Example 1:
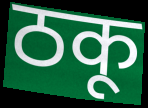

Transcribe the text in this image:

ठकू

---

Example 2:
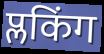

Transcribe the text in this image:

प्लकिंग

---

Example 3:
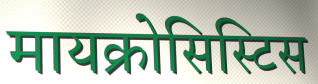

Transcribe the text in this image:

मायक्रोसिस्टिस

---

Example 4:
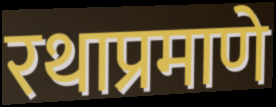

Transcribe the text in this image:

रथाप्रमाणे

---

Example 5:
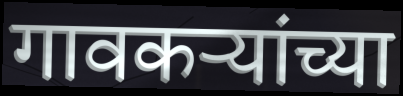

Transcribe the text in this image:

गावकऱ्यांच्या